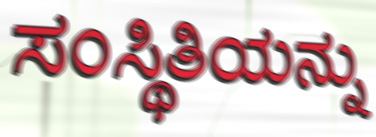
ಸಂಸ್ಥಿತಿಯನ್ನು